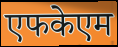
एफकेएम